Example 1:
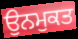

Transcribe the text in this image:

ਉਨਮੁਕਤ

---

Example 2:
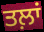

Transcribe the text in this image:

ਤਲ਼ਾਂ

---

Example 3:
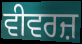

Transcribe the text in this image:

ਵੀਵਰਜ਼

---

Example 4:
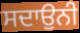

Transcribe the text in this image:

ਸਦਾਉਨੀ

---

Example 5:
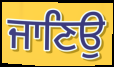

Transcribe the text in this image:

ਜਾਣਿਉ